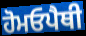
ਹੋਮਓਪੈਥੀ